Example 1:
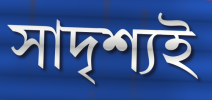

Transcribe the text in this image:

সাদৃশ্যই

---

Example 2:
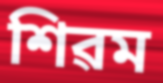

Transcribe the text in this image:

শিৱম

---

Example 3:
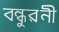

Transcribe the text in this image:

বন্ধুৱনী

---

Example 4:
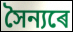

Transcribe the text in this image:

সৈন্যৰে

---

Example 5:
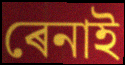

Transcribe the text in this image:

ৰেনাই